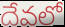
దేవలో